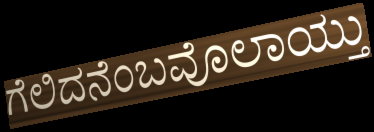
ಗೆಲಿದನೆಂಬವೊಲಾಯ್ತು